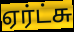
ஏர்ட்சு